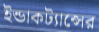
ইন্ডাকট্যান্সের